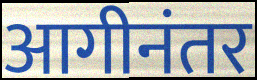
आगीनंतर